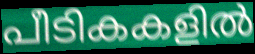
പീടികകളിൽ